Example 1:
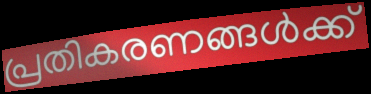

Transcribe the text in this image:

പ്രതികരണങ്ങൾക്ക്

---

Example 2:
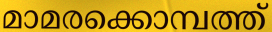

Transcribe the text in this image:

മാമരക്കൊമ്പത്ത്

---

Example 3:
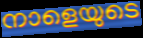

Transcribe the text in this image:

നാളെയുടെ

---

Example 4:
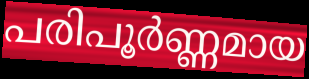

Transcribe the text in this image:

പരിപൂർണ്ണമായ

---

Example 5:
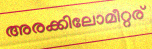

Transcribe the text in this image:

അരക്കിലോമീറ്റര്